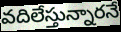
వదిలేస్తున్నారనే